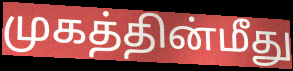
முகத்தின்மீது